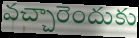
వచ్చారెందుకు